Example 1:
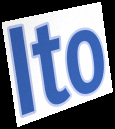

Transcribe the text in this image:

Ito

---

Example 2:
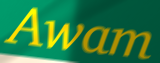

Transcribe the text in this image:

Awam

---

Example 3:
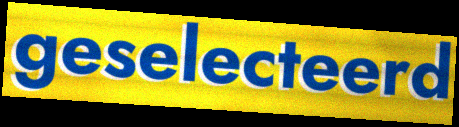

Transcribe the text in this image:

geselecteerd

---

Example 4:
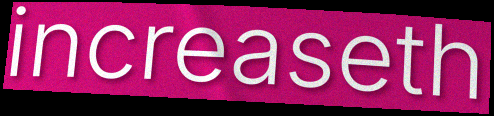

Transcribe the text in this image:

increaseth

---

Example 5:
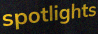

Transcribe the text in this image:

spotlights